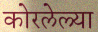
कोरलेल्या